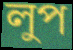
লুপ